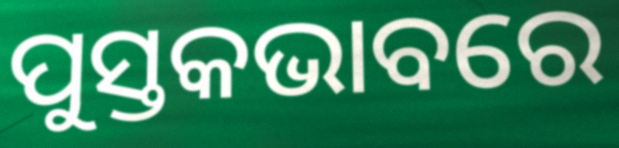
ପୁସ୍ତକଭାବରେ